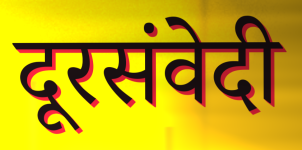
दूरसंवेदी